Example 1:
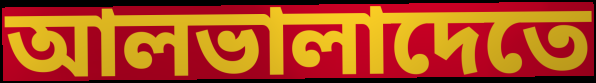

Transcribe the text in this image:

আলভালাদেতে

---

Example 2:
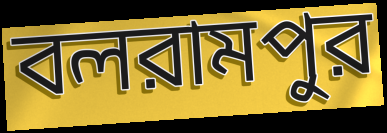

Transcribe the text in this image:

বলরামপুর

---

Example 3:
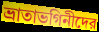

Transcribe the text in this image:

ভ্রাতাভগিনীদের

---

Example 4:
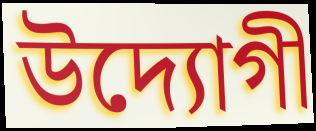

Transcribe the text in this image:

উদ্যোগী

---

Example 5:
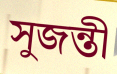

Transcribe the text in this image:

সুজন্তী